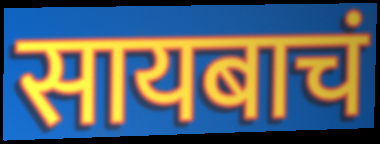
सायबाचं